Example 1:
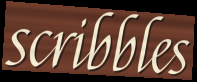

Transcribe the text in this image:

scribbles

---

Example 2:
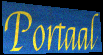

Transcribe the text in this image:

Portaal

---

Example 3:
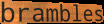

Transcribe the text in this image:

brambles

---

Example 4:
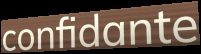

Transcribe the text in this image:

confidante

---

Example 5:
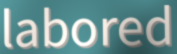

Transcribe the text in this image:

labored